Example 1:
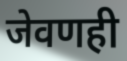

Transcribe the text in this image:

जेवणही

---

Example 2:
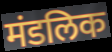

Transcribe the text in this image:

मंडलिक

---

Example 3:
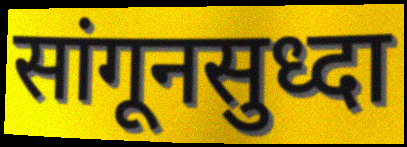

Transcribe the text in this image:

सांगूनसुध्दा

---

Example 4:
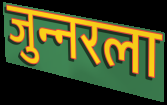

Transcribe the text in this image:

जुन्नरला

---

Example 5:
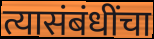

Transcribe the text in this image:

त्यासंबंधींचा